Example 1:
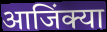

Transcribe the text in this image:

आजिंक्या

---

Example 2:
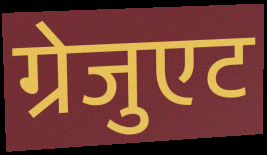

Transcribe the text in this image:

ग्रेजुएट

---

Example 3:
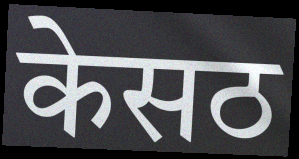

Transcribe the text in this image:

केसठ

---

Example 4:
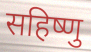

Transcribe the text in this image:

सहिष्णु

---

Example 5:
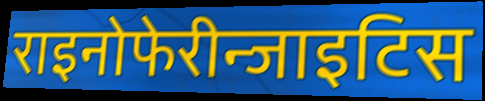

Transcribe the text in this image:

राइनोफेरीन्जाइटिस